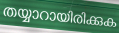
തയ്യാറായിരിക്കുക